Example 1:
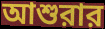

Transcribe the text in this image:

আশুরার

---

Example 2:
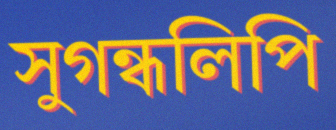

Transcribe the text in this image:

সুগন্ধলিপি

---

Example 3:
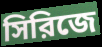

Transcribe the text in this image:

সিরিজে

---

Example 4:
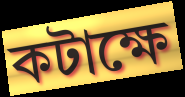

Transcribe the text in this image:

কটাক্ষে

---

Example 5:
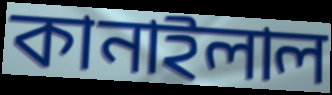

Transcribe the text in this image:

কানাইলাল